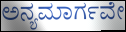
ಅನ್ಯಮಾರ್ಗವೇ